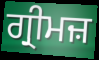
ਗ੍ਰੀਮਜ਼